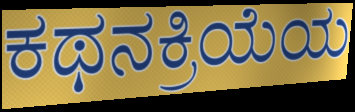
ಕಥನಕ್ರಿಯೆಯ